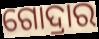
ଗୋଦ୍ରାର